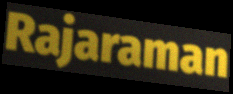
Rajaraman